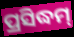
ପ୍ରସିଦ୍ଧମ୍